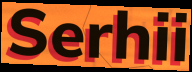
Serhii